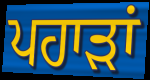
ਪਹਾੜਾਂ